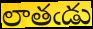
లాతఁడు